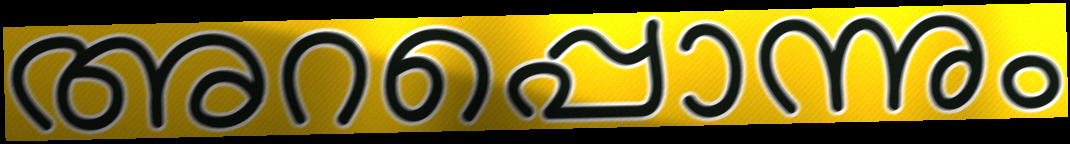
അറപ്പൊന്നും